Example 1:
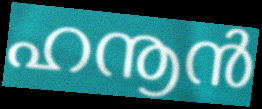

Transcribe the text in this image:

ഹനൂൻ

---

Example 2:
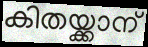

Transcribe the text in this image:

കിതയ്ക്കാന്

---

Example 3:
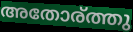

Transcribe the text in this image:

അതോര്ത്തു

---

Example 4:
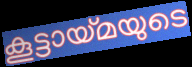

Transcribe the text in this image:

കൂട്ടായ്മയുടെ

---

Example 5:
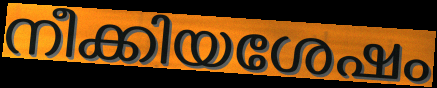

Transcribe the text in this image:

നീക്കിയശേഷം